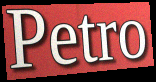
Petro